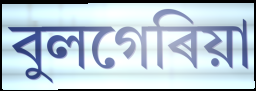
বুলগেৰিয়া